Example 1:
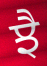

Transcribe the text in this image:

ਝੈ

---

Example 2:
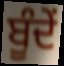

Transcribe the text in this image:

ਬੂੰਦੇਂ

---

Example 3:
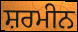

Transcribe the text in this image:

ਸ਼ਰਮੀਨ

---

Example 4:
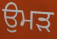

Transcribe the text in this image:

ਉਮੜ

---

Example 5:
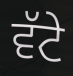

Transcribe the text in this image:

ਵੱਟੇ